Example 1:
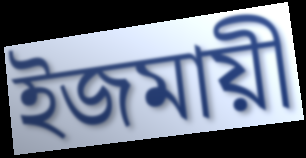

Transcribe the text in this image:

ইজমায়ী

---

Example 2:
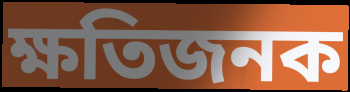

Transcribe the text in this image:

ক্ষতিজনক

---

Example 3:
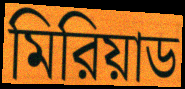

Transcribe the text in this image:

মিরিয়াড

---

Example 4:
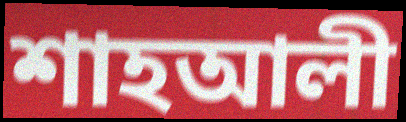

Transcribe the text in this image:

শাহআলী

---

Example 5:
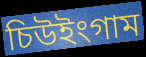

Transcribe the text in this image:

চিউইংগাম